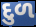
દુળ